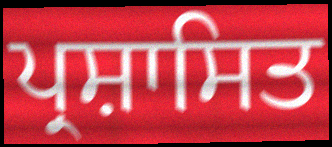
ਪ੍ਰਸ਼ਾਸਿਤ